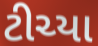
ટીચ્યા